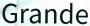
Grande